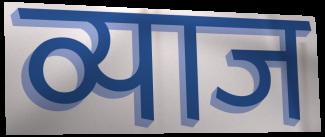
व्याज